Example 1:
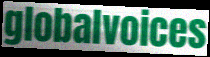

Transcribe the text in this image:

globalvoices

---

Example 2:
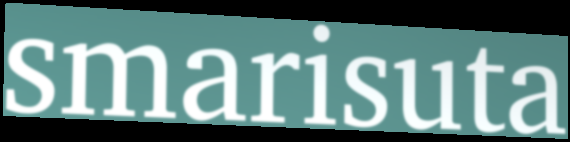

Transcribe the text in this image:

smarisuta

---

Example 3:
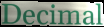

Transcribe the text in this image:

Decimal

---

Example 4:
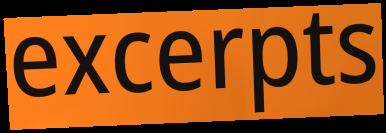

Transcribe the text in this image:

excerpts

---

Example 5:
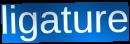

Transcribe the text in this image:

ligature